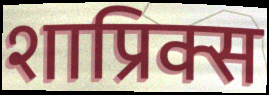
शाप्रिक्स